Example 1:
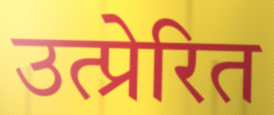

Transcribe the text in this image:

उत्‍प्रेरित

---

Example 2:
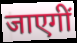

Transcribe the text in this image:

जाएगीं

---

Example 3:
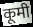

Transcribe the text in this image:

कूमी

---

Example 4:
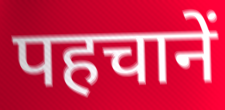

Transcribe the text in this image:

पहचानें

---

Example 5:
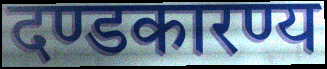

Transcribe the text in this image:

दण्डकारण्य